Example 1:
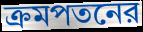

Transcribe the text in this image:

ক্রমপতনের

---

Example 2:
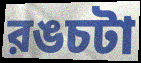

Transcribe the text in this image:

রঙচটা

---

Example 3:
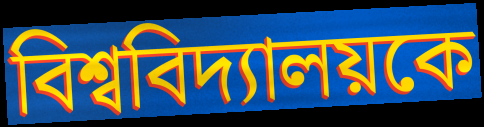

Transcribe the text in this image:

বিশ্ববিদ্যালয়কে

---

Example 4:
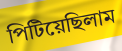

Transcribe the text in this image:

পিটিয়েছিলাম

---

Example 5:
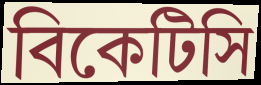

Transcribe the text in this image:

বিকেটিসি